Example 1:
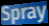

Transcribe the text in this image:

Spray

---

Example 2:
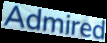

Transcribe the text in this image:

Admired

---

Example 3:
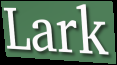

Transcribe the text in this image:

Lark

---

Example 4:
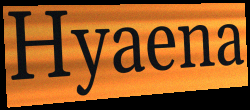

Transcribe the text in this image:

Hyaena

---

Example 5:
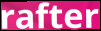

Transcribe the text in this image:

rafter